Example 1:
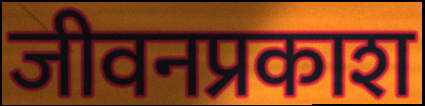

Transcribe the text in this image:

जीवनप्रकाश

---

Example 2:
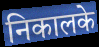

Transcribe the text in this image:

निकालके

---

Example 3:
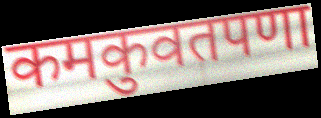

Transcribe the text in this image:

कमकुवतपणा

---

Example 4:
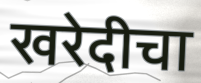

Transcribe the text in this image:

खरेदीचा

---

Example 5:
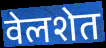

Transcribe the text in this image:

वेलशेत